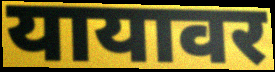
यायावर